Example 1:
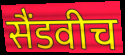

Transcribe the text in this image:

सैंडवीच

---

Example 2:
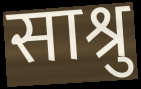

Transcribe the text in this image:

साश्रु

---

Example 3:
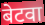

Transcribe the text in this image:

बेटवा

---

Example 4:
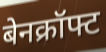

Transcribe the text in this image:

बेनक्रॉफ्ट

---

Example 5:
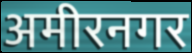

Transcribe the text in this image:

अमीरनगर